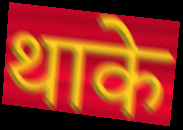
थाके